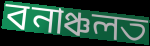
বনাঞ্চলত